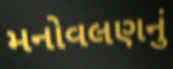
મનોવલણનું